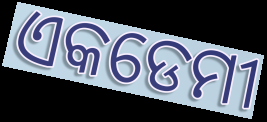
ଏକଡେମୀ